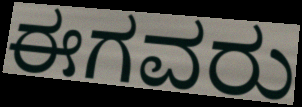
ಈಗವರು